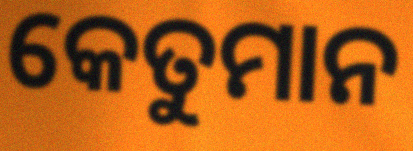
କେତୁମାନ